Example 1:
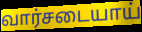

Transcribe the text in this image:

வார்சடையாய்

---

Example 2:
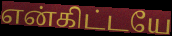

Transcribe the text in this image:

என்கிட்டயே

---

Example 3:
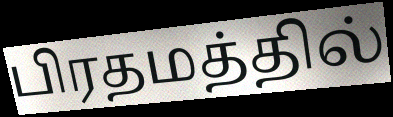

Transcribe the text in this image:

பிரதமத்தில்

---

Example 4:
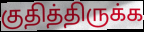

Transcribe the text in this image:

குதித்திருக்க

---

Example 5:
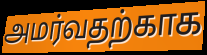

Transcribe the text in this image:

அமர்வதற்காக